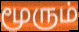
மூரும்